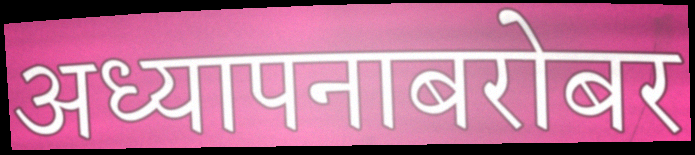
अध्यापनाबरोबर